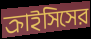
ক্রাইসিসের